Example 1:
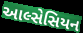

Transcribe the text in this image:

આલ્સેસિયન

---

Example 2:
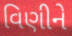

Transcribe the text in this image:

વિણીને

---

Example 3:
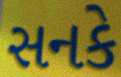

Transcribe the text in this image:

સનકે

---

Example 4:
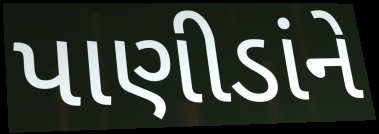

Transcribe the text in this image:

પાણીડાંને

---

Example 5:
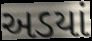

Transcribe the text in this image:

અડયાં